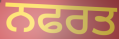
ਨਫਰਤ